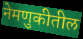
नेमणुकीतील